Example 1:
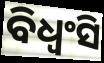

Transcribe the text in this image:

ବିଧ୍ୱଂସି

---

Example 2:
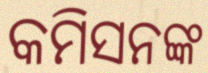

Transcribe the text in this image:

କମିସନଙ୍କ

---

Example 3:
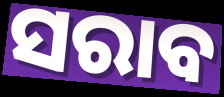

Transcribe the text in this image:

ସରାବ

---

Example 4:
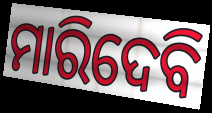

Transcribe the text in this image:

ମାରିଦେବି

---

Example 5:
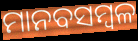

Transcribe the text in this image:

ମାନବସମ୍ବଳ